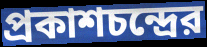
প্রকাশচন্দ্রের